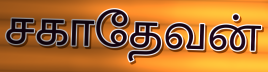
சகாதேவன்